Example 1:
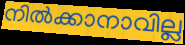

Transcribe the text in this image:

നിൽക്കാനാവില്ല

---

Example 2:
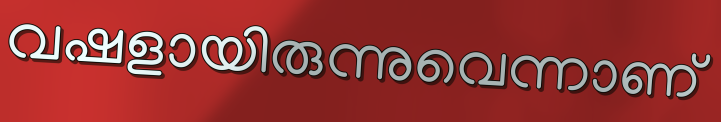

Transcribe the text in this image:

വഷളായിരുന്നുവെന്നാണ്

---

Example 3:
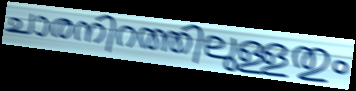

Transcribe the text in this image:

ചാരനിറത്തിലുള്ളതും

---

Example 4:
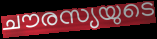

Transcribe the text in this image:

ചൗരസ്യയുടെ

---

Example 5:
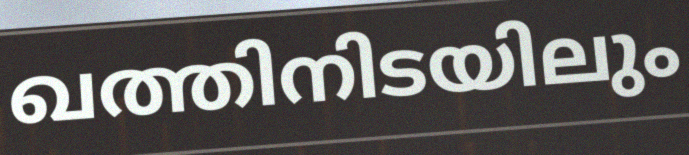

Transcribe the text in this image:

ഖത്തിനിടയിലും